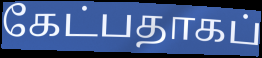
கேட்பதாகப்